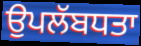
ਉਪਲੱਬਧਤਾ